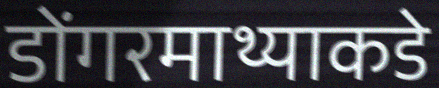
डोंगरमाथ्याकडे